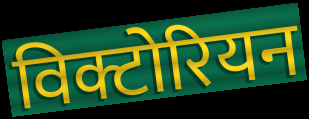
विक्टोरियन